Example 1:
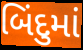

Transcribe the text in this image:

બિંદુમાં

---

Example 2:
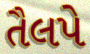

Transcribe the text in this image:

તૈલપે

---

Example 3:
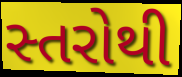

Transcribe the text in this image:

સ્તરોથી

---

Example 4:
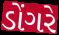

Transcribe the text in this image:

ડોંગરે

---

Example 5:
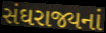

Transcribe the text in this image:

સંઘરાજ્યનાં